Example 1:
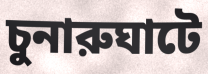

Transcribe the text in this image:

চুনারুঘাটে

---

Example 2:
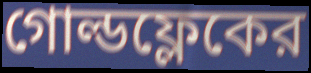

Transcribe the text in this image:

গোল্ডফ্লেকের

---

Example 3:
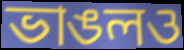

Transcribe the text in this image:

ভাঙলও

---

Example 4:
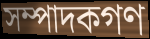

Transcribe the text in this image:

সম্পাদকগণ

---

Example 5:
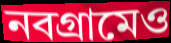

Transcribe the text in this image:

নবগ্রামেও